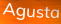
Agusta